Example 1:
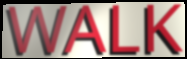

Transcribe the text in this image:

WALK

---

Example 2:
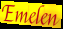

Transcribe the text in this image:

Emelen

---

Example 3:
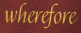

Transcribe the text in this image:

wherefore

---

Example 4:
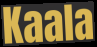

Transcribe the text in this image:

Kaala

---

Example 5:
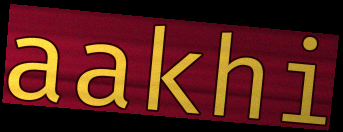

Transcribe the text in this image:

aakhi